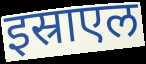
इस्राएल